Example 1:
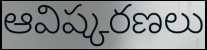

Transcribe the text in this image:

ఆవిష్కరణలు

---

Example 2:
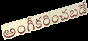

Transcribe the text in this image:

అంగీకరించబడే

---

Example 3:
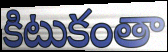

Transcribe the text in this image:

కిటుకంతా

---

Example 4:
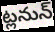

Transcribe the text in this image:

ట్లనున్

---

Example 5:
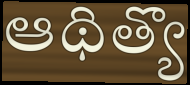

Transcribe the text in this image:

ఆథిత్యొ